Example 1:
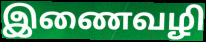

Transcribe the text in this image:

இணைவழி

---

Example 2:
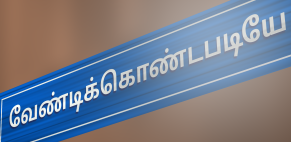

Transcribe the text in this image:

வேண்டிக்கொண்டபடியே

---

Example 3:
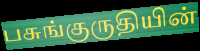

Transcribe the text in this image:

பசுங்குருதியின்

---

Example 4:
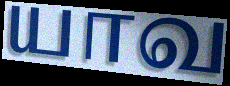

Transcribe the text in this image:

யாவ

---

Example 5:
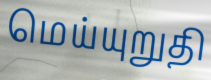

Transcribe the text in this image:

மெய்யுறுதி